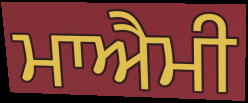
ਮਾਐਮੀ